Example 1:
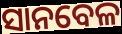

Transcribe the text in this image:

ସାନବେଳ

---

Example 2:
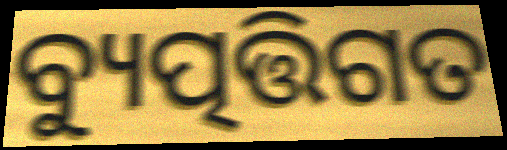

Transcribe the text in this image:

ବ୍ୟୁତ୍ପତ୍ତିଗତ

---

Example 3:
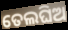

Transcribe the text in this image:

ତେଲଘିଅ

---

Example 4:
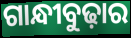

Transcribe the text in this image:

ଗାନ୍ଧୀବୁଢ଼ାର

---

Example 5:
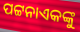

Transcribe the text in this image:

ପଟ୍ଟନାଏକଙ୍କୁ